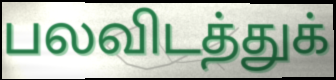
பலவிடத்துக்